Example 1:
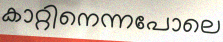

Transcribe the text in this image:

കാറ്റിനെന്നപോലെ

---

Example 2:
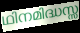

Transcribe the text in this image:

ഥിനമിദ്ധസ്സ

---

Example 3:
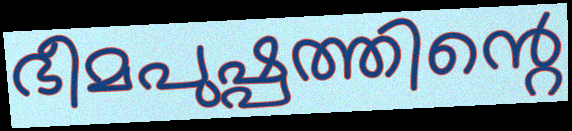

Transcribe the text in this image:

ഭീമപുഷ്പത്തിന്റെ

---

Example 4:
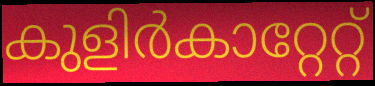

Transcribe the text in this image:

കുളിർകാറ്റേറ്റ്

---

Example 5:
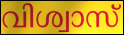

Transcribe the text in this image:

വിശ്വാസ്